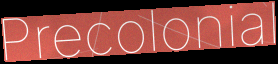
Precolonial